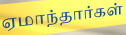
ஏமாந்தார்கள்